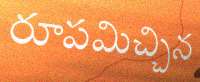
రూపమిచ్చిన